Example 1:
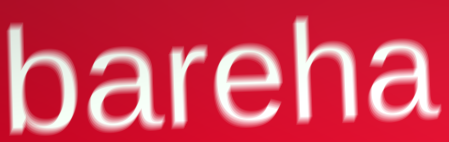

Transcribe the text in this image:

bareha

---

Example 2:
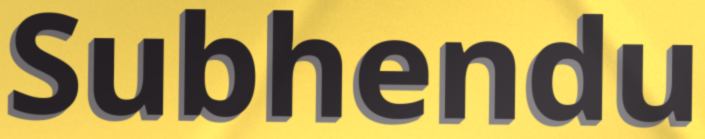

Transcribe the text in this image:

Subhendu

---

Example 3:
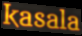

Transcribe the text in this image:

kasala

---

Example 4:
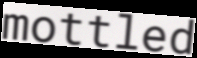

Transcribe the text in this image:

mottled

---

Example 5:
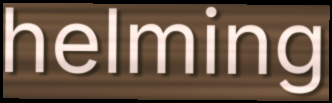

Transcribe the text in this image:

helming